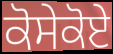
ਕੋਸੇਕੋਏ